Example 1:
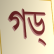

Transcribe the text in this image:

গড্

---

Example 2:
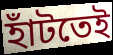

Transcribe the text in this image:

হাঁটতেই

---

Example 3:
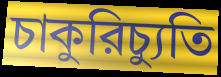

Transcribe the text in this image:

চাকুরিচ্যুতি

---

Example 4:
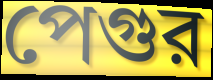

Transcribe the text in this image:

পেগুর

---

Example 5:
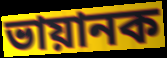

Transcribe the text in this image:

ভায়ানক